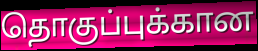
தொகுப்புக்கான